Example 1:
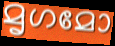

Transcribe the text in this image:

മൃഗമോ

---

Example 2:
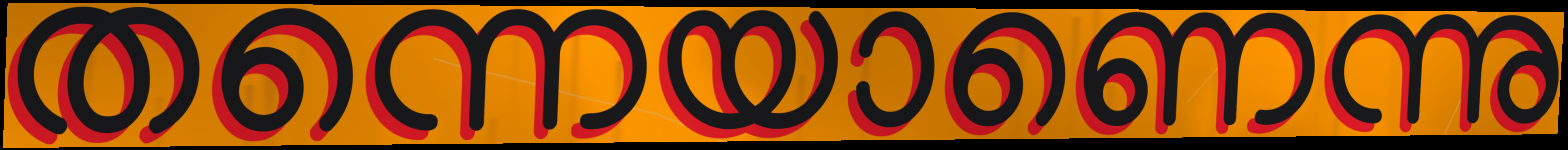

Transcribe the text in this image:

തന്നെയാണെന്നു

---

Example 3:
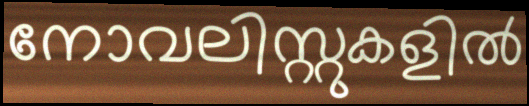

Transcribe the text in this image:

നോവലിസ്റ്റുകളിൽ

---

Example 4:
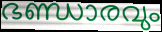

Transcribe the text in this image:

ഭണ്ഡാരവും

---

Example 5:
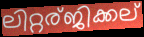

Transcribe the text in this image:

ലിറ്റര്ജിക്കല്